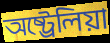
অষ্ট্ৰেলিয়া